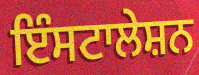
ਇੰਸਟਾਲੇਸ਼ਨ